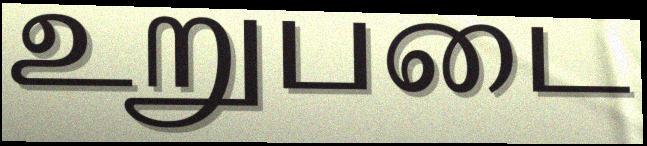
உறுபடை